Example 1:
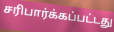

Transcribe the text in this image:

சரிபார்க்கப்பட்டது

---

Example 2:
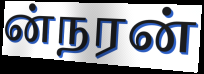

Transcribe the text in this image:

ன்நரன்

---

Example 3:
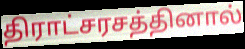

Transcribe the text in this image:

திராட்சரசத்தினால்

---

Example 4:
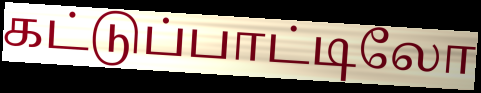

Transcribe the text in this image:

கட்டுப்பாட்டிலோ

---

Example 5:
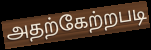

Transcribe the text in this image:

அதற்கேற்றபடி